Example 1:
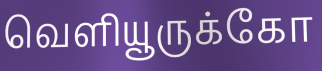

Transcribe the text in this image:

வெளியூருக்கோ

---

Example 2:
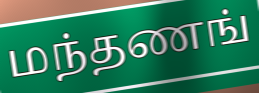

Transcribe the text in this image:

மந்தணங்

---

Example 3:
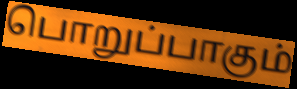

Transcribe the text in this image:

பொறுப்பாகும்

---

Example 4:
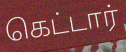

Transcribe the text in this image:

கெட்டார்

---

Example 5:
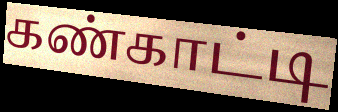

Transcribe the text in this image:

கண்காட்டி